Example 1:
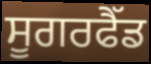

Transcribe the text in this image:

ਸੂਗਰਫੈੱਡ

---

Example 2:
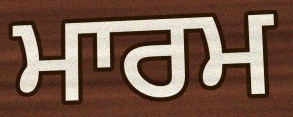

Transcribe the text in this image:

ਮਾਰਮ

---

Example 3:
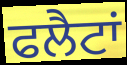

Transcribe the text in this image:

ਫਲੈਟਾਂ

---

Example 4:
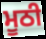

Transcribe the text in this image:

ਮੂਠੀ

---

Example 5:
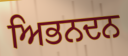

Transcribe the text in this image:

ਅਿਭਨਦਨ